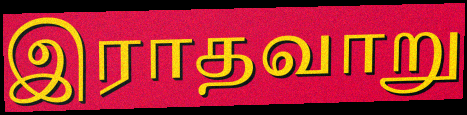
இராதவாறு